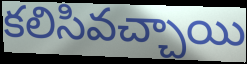
కలిసివచ్చాయి